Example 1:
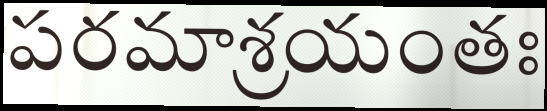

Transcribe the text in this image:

పరమాశ్రయంతః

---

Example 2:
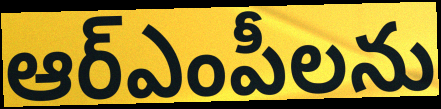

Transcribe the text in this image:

ఆర్ఎంపీలను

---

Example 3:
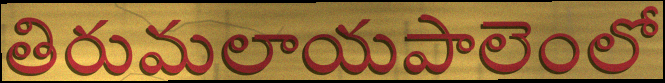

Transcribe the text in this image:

తిరుమలాయపాలెంలో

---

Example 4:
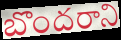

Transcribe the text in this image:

బొందరాని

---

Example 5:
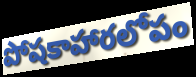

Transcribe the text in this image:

పోషకాహారలోపం